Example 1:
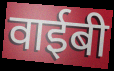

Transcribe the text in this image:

वाईबी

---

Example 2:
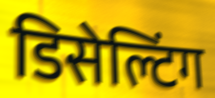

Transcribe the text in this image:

डिसेल्टिंग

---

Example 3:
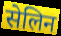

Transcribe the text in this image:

सेलिन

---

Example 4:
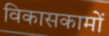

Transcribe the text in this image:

विकासकामों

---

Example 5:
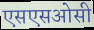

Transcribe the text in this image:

एसएसओसी